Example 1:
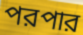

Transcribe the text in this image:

পরপার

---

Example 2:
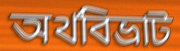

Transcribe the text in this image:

অর্থবিভ্রাট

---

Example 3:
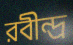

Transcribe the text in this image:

রবীন্দ্র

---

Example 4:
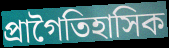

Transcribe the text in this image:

প্রাগৈতিহাসিক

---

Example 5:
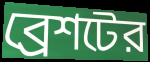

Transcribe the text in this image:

ব্রেশটের